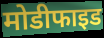
मोडीफाइड